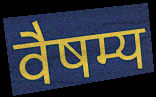
वैषम्‍य